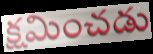
క్షమించడు